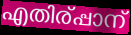
എതിര്പ്പാന്